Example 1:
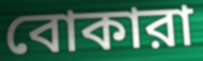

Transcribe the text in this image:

বোকারা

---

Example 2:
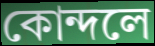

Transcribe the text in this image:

কোন্দলে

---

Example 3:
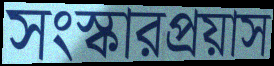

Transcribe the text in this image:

সংস্কারপ্রয়াস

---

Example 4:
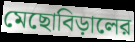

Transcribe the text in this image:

মেছোবিড়ালের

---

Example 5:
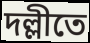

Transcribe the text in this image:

দল্লীতে